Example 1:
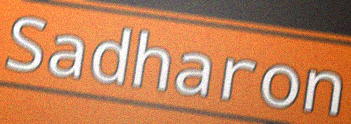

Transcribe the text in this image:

Sadharon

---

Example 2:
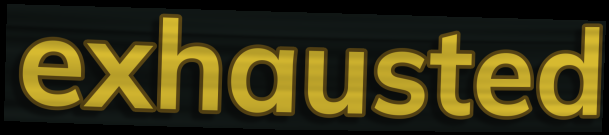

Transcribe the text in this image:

exhausted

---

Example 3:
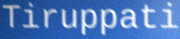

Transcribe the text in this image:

Tiruppati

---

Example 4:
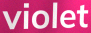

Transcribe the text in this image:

violet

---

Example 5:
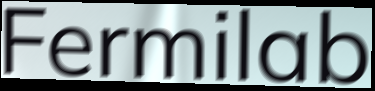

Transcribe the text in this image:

Fermilab